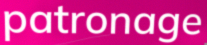
patronage